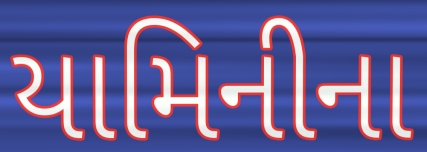
યામિનીના